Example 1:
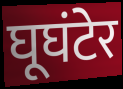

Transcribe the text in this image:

घूघंटेर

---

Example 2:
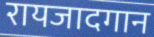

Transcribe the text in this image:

रायजादगान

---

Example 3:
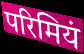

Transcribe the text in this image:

परिमियं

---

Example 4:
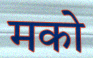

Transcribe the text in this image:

मको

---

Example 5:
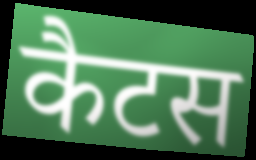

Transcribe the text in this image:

कैटस